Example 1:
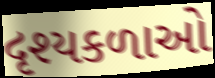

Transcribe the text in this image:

દૃશ્યકળાઓ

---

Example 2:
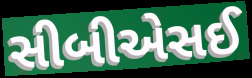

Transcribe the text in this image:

સીબીએસઈ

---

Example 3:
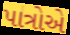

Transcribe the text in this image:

પાત્રોએ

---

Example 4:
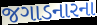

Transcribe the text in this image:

જગાડનારના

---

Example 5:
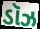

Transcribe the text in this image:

ડૉઝ